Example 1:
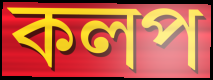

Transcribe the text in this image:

কলপ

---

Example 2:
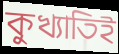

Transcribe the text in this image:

কুখ্যাতিই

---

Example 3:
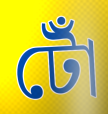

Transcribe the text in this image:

টোঁ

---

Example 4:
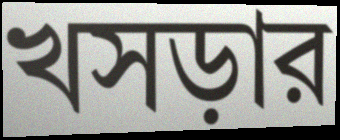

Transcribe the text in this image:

খসড়ার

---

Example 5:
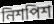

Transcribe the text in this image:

নিশপিশ